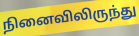
நினைவிலிருந்து